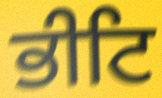
ਭੀਟਿ